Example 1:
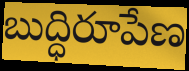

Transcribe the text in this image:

బుద్ధిరూపేణ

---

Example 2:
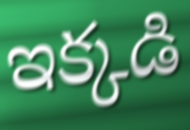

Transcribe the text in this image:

ఇక్కడి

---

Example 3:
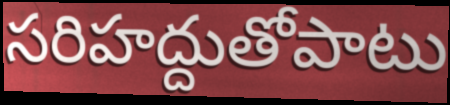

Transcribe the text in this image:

సరిహద్దుతోపాటు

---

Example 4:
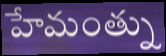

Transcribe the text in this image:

హేమంత్ను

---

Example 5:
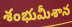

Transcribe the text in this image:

శంభుమీశాన